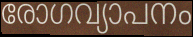
രോഗവ്യാപനം